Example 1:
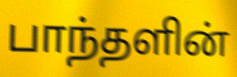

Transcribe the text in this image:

பாந்தளின்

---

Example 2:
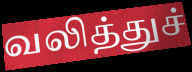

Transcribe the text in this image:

வலித்துச்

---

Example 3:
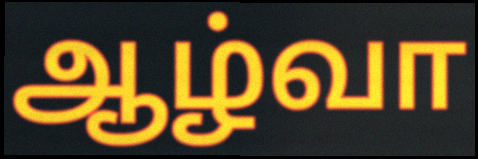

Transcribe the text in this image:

ஆழ்வா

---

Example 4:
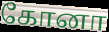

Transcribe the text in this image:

கோனா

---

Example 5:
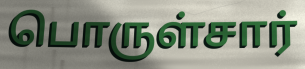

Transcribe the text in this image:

பொருள்சார்